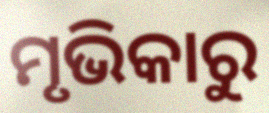
ମୃଭିକାରୁ